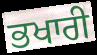
ਭਖਾਰੀ